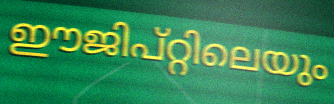
ഈജിപ്റ്റിലെയും